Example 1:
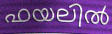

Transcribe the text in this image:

ഫയലിൽ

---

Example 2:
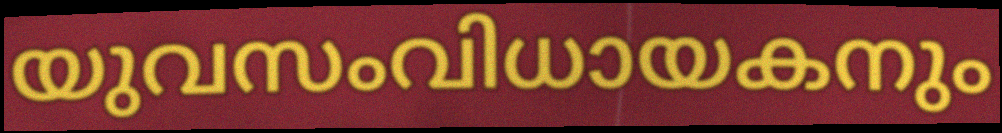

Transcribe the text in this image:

യുവസംവിധായകനും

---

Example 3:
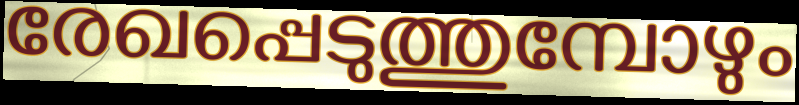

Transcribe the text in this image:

രേഖപ്പെടുത്തുമ്പോഴും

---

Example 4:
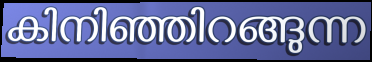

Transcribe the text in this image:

കിനിഞ്ഞിറങ്ങുന്ന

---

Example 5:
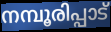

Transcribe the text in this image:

നമ്പൂരിപ്പാട്